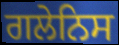
ਗਲੇਨਿਸ